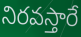
నిరవస్తారే